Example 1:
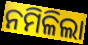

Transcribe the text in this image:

ନମିଳିଲା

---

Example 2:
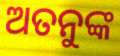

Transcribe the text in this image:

ଅତନୁଙ୍କ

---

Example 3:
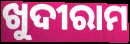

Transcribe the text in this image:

ଖୁଦୀରାମ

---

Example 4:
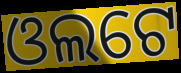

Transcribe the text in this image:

ଓଲଟେ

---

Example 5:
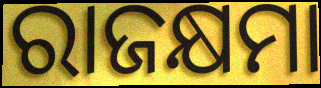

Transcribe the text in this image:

ରାଜକ୍ଷମା